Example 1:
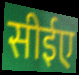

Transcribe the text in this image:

सीईए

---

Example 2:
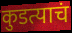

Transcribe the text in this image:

कुडत्याचं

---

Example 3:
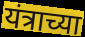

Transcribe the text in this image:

यंत्राच्या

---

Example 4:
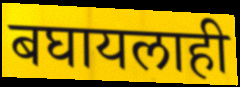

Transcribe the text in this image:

बघायलाही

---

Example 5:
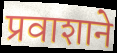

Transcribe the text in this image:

प्रवाशाने